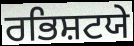
ਰਭਿਸ਼ਟਯੇ